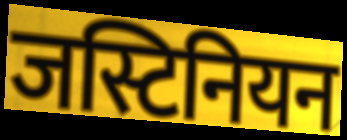
जस्टिनियन